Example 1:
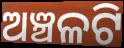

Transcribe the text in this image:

ଅଞ୍ଚଳଟି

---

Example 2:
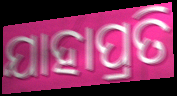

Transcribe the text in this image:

ଯାହାପ୍ରତି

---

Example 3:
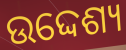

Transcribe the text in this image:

ଉଦ୍ଦେଶ୍ୟ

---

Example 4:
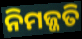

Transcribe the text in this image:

ନିମଜ୍ଜତି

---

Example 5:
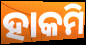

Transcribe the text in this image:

ହାକମି